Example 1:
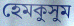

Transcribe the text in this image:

হেমকুসুম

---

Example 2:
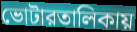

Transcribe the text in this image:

ভোটারতালিকায়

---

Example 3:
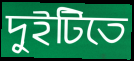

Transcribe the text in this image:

দুইটিতে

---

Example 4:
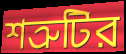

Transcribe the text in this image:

শত্রুটির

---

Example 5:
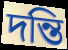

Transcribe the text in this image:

দন্তি